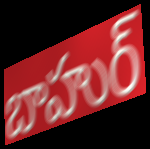
బాహుర్